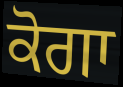
ਕੋਗਾ